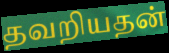
தவறியதன்